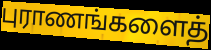
புராணங்களைத்